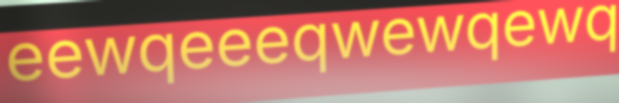
eewqeeeqwewqewq